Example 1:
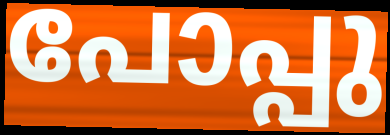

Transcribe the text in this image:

പോപ്പു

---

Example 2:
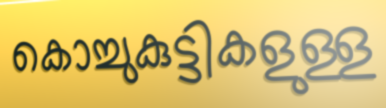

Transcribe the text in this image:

കൊച്ചുകുട്ടികളുള്ള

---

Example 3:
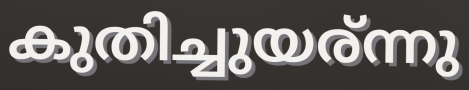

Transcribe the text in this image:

കുതിച്ചുയര്ന്നു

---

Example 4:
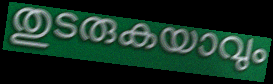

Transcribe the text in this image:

തുടരുകയാവും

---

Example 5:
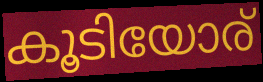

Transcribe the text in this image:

കൂടിയോര്